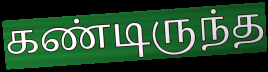
கண்டிருந்த